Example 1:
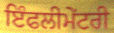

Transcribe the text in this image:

ਇੰਫਲੀਮੇਂਟਰੀ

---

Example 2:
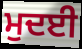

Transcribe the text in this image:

ਮੁਦਈ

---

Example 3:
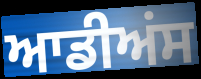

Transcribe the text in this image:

ਆਡੀਅਂਸ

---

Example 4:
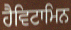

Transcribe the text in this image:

ਹੈਵਿਟਾਮਿਨ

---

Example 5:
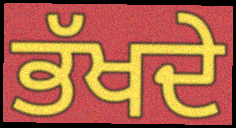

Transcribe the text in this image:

ਭੱਖਦੇ